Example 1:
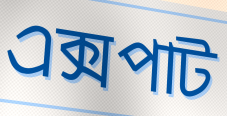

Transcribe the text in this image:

এক্সপাট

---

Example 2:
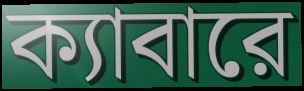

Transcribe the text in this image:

ক্যাবারে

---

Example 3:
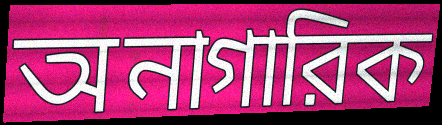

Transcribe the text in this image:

অনাগারিক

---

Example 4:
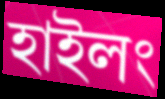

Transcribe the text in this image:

হাইলং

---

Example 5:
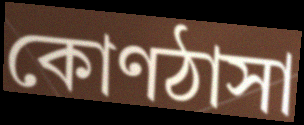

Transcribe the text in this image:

কোণঠাসা